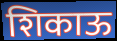
शिकाऊ